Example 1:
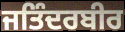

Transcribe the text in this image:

ਜਤਿੰਦਰਬੀਰ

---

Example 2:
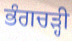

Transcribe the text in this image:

ਭੰਗਚੜ੍ਹੀ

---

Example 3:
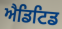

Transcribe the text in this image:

ਐਡਿਟਿਡ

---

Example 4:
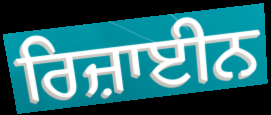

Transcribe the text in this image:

ਰਿਜ਼ਾਈਨ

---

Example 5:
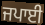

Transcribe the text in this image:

ਜਪਾਈ